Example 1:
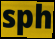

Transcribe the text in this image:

sph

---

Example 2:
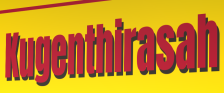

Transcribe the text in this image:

Kugenthirasah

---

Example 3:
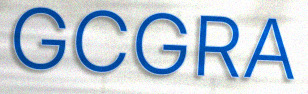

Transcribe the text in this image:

GCGRA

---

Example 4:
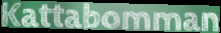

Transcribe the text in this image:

Kattabomman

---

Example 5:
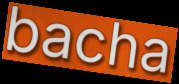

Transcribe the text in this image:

bacha